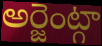
అర్జెంట్గా